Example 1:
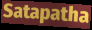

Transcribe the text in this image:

Satapatha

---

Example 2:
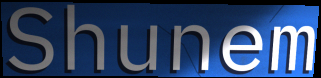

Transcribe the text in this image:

Shunem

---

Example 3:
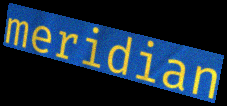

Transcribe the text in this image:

meridian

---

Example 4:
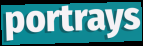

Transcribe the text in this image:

portrays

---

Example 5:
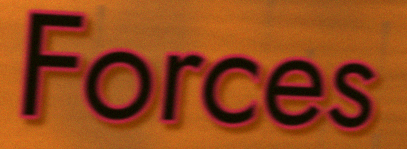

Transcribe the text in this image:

Forces